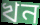
খন